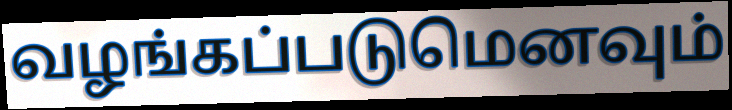
வழங்கப்படுமெனவும்